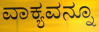
ವಾಕ್ಯವನ್ನೂ